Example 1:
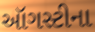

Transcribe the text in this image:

ઑગસ્ટીના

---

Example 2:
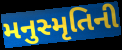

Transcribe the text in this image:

મનુસ્મૃતિની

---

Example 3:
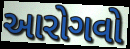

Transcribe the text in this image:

આરોગવો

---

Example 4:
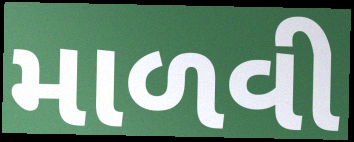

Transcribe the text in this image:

માળવી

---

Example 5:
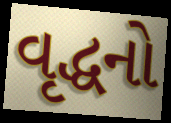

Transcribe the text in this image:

વૃદ્ધનો